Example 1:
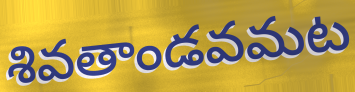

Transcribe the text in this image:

శివతాండవమట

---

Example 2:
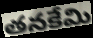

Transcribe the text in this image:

తనకేమి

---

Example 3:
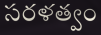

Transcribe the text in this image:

సరళత్వం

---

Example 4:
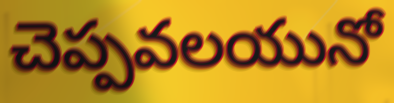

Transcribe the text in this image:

చెప్పవలయునో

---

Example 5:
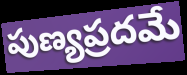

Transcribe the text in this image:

పుణ్యప్రదమే